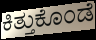
ಕಿತ್ತುಕೊಂಡೆ